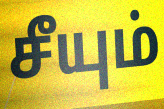
சீயும்